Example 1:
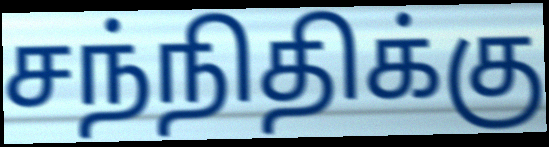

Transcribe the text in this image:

சந்நிதிக்கு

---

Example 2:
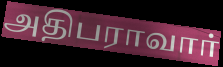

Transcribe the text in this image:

அதிபராவார்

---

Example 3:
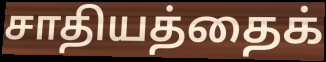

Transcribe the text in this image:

சாதியத்தைக்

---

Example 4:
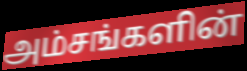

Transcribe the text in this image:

அம்சங்களின்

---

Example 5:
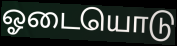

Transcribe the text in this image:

ஓடையொடு